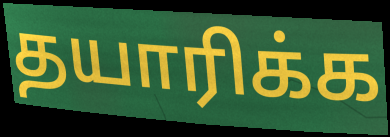
தயாரிக்க